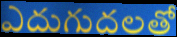
ఎదుగుదలతో